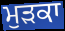
ਮੁੜਕਾ